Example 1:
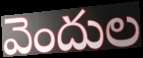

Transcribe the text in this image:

వెందుల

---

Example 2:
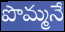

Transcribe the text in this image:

పొమ్మనే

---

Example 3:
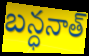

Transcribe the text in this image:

బన్ధనాత్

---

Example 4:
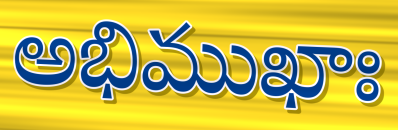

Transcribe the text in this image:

అభిముఖాః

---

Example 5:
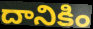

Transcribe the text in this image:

దానికిం